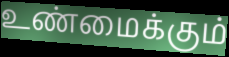
உண்மைக்கும்